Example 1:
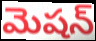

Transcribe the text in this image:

మెషన్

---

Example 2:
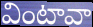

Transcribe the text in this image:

వింటావా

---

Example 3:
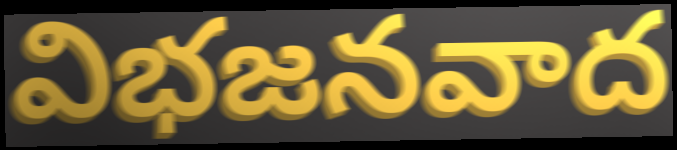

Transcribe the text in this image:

విభజనవాద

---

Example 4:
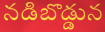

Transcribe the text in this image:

నడిబొడ్డున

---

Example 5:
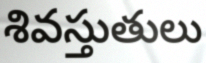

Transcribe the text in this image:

శివస్తుతులు